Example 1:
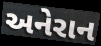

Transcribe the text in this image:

અનેરાન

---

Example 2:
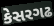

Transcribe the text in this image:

કેસરગઢ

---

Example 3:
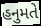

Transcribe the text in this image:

હનુમતે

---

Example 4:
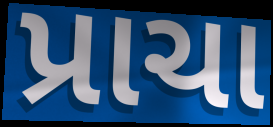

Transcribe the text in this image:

પ્રાચા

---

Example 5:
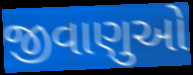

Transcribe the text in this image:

જીવાણુઓ